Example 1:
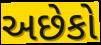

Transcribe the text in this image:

અછેકો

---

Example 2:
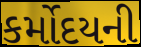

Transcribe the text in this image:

કર્મોદયની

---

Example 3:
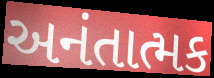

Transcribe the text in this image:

અનંતાત્મક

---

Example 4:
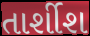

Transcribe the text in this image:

તાર્શીશ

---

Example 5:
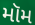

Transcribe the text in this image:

મૉમ